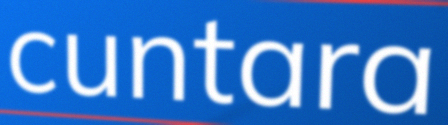
cuntara